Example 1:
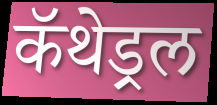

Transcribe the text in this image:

कॅथेड्रल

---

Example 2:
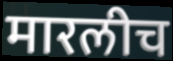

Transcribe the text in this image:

मारलीच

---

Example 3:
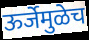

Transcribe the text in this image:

ऊर्जेमुळेच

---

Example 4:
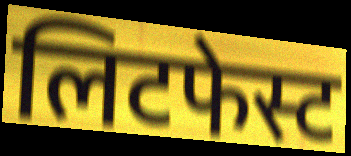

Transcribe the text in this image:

लिटफेस्ट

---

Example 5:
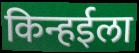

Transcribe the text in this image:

किन्हईला